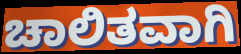
ಚಾಲಿತವಾಗಿ